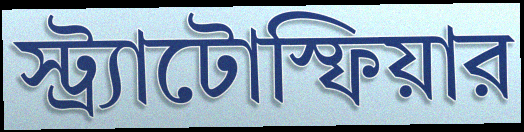
স্ট্র্যাটোস্ফিয়ার